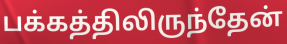
பக்கத்திலிருந்தேன்